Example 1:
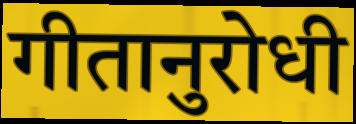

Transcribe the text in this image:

गीतानुरोधी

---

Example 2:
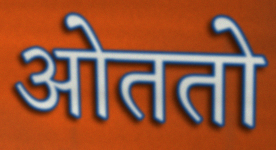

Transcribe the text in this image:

ओततो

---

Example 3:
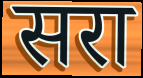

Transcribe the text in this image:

सरा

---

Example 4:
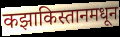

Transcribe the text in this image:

कझाकिस्तानमधून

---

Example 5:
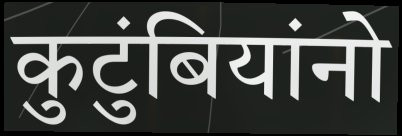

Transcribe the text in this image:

कुटुंबियांनो